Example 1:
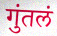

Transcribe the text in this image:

गुंतलं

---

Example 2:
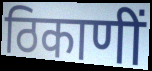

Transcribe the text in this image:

ठिकाणीं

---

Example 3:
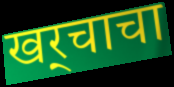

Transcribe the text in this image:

खर्चाचा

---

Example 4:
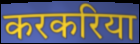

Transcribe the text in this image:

करकरिया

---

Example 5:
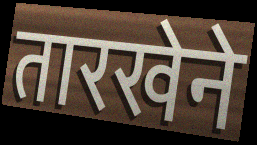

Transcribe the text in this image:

तारखेने